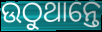
ଉଠୁଥାନ୍ତେ